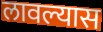
लावल्यास